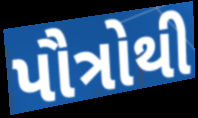
પૌત્રોથી